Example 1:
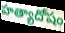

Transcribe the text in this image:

హత్యాదోషం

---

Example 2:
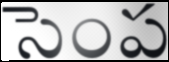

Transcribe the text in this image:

సెంప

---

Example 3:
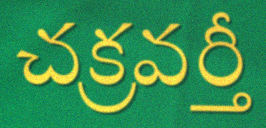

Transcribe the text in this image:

చక్రవర్తీ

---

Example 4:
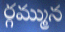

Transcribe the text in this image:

ర్గమ్మున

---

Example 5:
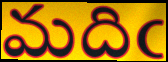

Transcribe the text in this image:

మదిఁ